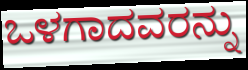
ಒಳಗಾದವರನ್ನು